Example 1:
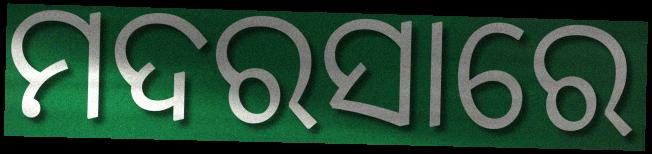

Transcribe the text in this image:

ମଦରସାରେ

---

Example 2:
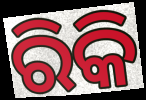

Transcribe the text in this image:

ରିକି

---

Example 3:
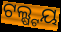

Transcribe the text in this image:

ଟଲ୍ଷ୍ଟୟ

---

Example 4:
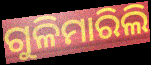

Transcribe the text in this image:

ଗୁଳିମାରିଲି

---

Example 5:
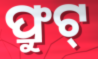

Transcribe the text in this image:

ଫ୍ରୁଟ୍